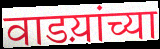
वाडय़ांच्या